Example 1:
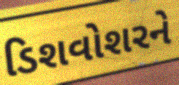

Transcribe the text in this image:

ડિશવોશરને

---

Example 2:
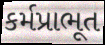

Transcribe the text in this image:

કર્મપ્રાભૂત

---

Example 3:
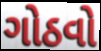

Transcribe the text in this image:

ગોઠવો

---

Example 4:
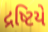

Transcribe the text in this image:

દ્રષ્ટિયે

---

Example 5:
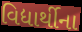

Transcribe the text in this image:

વિદ્યાર્થીના